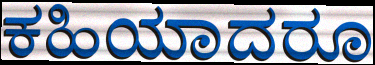
ಕಹಿಯಾದರೂ